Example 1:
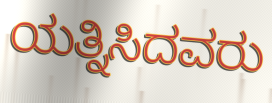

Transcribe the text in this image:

ಯತ್ನಿಸಿದವರು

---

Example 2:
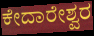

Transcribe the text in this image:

ಕೇದಾರೇಶ್ವರ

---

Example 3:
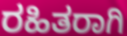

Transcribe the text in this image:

ರಹಿತರಾಗಿ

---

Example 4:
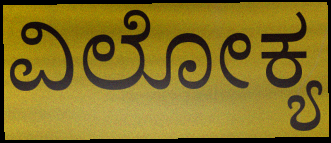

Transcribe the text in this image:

ವಿಲೋಕ್ಯ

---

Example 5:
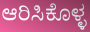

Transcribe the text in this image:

ಆರಿಸಿಕೊಳ್ಳ